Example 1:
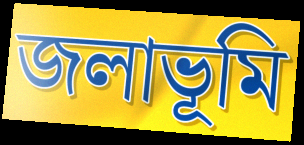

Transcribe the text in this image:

জলাভূমি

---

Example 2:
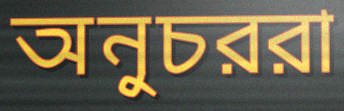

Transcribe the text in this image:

অনুচররা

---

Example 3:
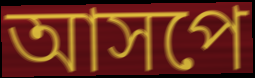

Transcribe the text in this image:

আসপে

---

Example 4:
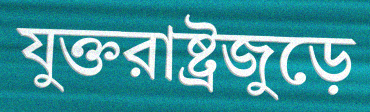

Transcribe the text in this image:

যুক্তরাষ্ট্রজুড়ে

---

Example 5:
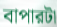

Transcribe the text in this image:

বাপারটা